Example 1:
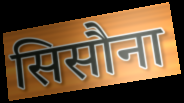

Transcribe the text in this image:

सिसौना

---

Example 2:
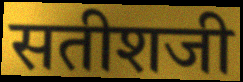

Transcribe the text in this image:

सतीशजी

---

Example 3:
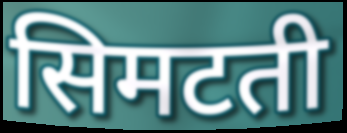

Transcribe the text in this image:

सिमटती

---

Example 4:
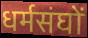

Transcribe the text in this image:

धर्मसंघों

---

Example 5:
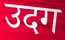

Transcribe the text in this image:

उदग